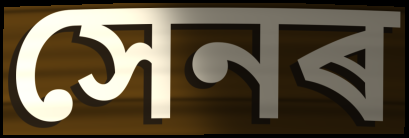
সেনৰ